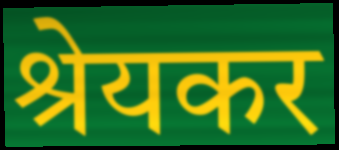
श्रेयकर